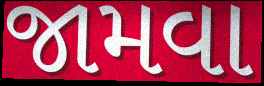
જામવા